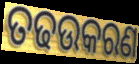
ତଢଉକରଣ